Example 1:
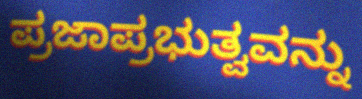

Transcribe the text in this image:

ಪ್ರಜಾಪ್ರಭುತ್ವವನ್ನು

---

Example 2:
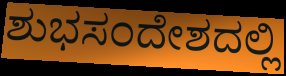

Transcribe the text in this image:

ಶುಭಸಂದೇಶದಲ್ಲಿ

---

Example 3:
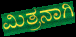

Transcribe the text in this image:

ಮಿತ್ರನಾಗಿ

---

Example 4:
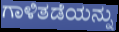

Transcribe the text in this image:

ಗಾಳಿತಡೆಯನ್ನು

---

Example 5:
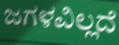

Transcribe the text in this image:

ಜಗಳವಿಲ್ಲದೆ